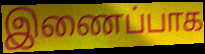
இணைப்பாக